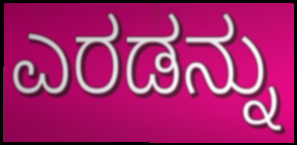
ಎರಡನ್ನು